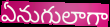
ఏనుగులాగా